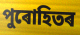
পুৰোহিতৰ